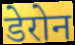
डेरोन